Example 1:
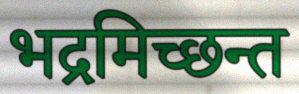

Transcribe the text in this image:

भद्रमिच्छन्त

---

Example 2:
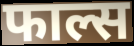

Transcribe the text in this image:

फाल्स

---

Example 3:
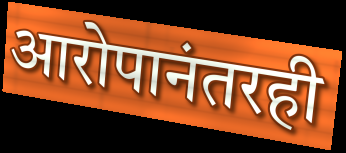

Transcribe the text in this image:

आरोपानंतरही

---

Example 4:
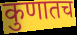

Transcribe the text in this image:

कुणातच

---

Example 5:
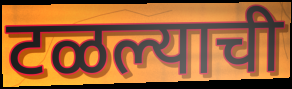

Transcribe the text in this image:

टळल्याची